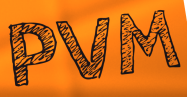
PVM